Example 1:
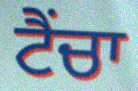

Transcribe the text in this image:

ਟੈਂਚਾ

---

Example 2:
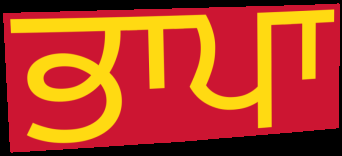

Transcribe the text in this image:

ਭਾਪਾ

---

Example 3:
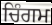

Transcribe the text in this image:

ਚਿੰਗਮ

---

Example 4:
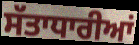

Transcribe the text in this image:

ਸੱਤਾਧਾਰੀਆਂ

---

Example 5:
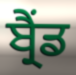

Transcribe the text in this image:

ਬ੍ਰੈਂਡ